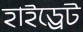
হাইড্রেট